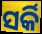
ସର୍କି